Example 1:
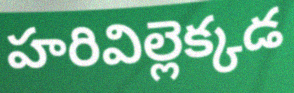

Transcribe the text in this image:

హరివిల్లెక్కడ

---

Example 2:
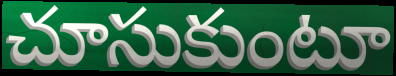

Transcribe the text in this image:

చూసుకుంటూ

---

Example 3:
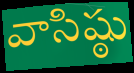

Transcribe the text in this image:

వాసిష్ఠు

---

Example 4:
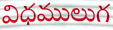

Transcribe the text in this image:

విధములుగ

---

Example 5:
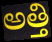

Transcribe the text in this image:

అత్తి